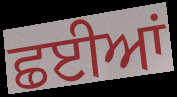
ਛਈਆਂ